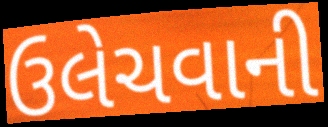
ઉલેચવાની